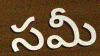
సమీ